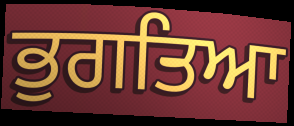
ਭੁਗਤਿਆ